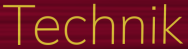
Technik